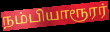
நம்பியாரூரர்